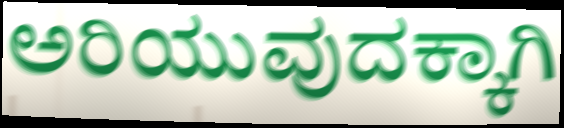
ಅರಿಯುವುದಕ್ಕಾಗಿ